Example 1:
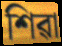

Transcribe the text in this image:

শিৱা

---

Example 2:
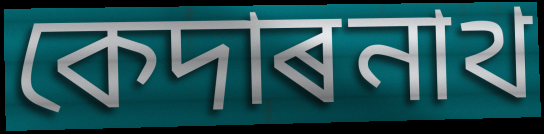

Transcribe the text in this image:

কেদাৰনাথ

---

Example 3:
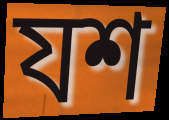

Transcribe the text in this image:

যশ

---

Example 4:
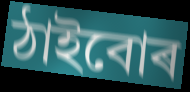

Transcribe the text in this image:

ঠাইবোৰ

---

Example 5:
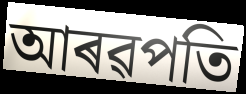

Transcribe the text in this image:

আৰৱপতি